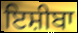
ਇਸ਼ੀਬਾ